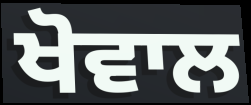
ਖੋਵਾਲ